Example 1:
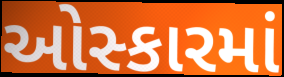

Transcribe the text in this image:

ઓસ્કારમાં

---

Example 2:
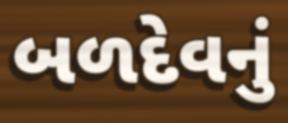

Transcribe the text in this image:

બળદેવનું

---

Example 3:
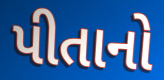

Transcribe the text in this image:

પીતાનો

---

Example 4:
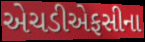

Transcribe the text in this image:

એચડીએફસીના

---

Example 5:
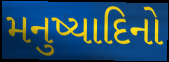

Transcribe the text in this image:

મનુષ્યાદિનો